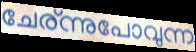
ചേര്ന്നുപോവുന്ന